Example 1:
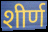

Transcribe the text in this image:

शीर्ण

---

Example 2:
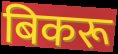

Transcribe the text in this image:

बिकरू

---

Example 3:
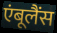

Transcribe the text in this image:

एंबूलैंस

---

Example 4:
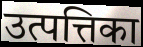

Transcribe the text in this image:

उत्पत्तिका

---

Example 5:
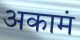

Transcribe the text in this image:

अकामं